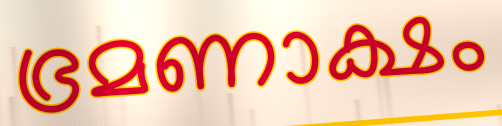
ഭ്രമണാക്ഷം